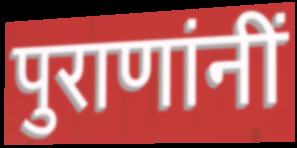
पुराणांनीं